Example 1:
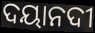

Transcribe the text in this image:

ଦୟାନଦୀ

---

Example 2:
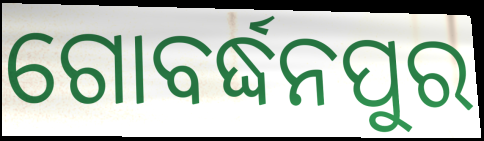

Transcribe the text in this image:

ଗୋବର୍ଦ୍ଧନପୁର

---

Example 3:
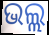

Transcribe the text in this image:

ଭଲ୍ଲ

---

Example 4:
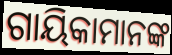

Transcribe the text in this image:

ଗାୟିକାମାନଙ୍କ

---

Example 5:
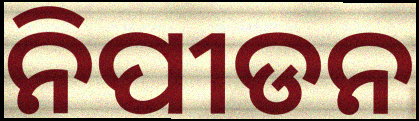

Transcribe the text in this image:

ନିପୀଡନ